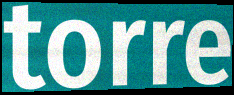
torre